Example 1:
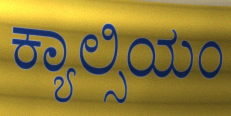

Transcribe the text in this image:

ಕ್ಯಾಲ್ಸಿಯಂ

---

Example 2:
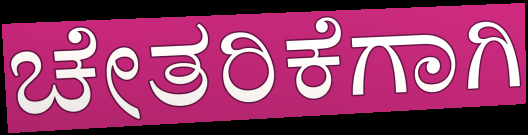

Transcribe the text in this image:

ಚೇತರಿಕೆಗಾಗಿ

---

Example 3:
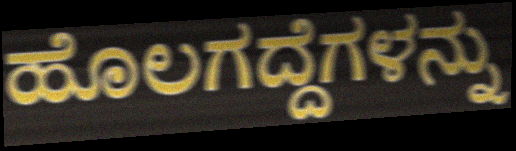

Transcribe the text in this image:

ಹೊಲಗದ್ದೆಗಳನ್ನು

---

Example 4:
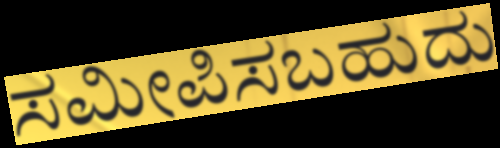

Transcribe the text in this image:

ಸಮೀಪಿಸಬಹುದು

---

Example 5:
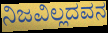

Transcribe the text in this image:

ನಿಜವಿಲ್ಲದವನ